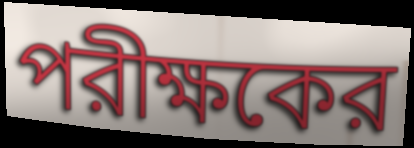
পরীক্ষকের